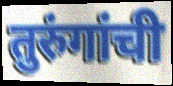
तुरुंगांची